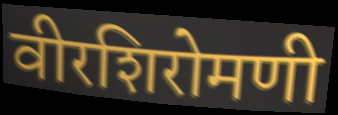
वीरशिरोमणी